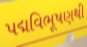
પદ્મવિભૂષણથી